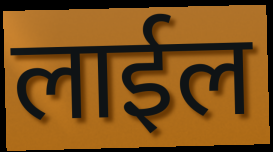
लाईल